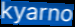
kyarno